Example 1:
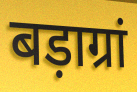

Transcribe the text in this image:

बड़ाग्रां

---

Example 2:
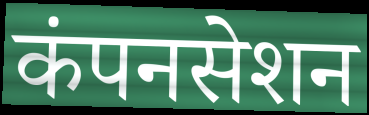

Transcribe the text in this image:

कंपनसेशन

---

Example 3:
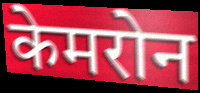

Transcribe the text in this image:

केमरोन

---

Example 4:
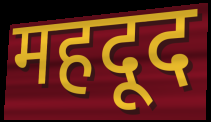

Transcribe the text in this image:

महदूद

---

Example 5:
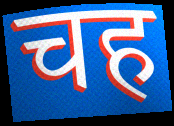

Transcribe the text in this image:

चह